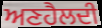
ਅਣਹੈਲਦੀ